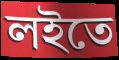
লইতে